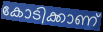
കോടിക്കാണ്